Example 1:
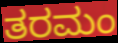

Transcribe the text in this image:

ತರಮಂ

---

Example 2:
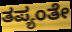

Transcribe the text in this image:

ತಪ್ಯಂತೇ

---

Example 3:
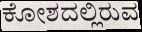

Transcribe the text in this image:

ಕೋಶದಲ್ಲಿರುವ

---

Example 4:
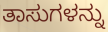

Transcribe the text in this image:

ತಾಸುಗಳನ್ನು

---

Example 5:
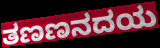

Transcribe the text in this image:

ತಣಣನದಯ